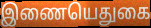
இணையெதுகை